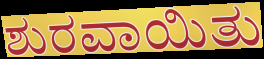
ಶುರವಾಯಿತು